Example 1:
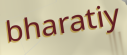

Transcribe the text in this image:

bharatiy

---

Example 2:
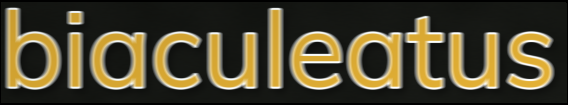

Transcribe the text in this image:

biaculeatus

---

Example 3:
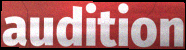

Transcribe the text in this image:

audition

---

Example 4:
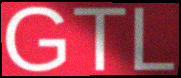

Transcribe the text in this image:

GTL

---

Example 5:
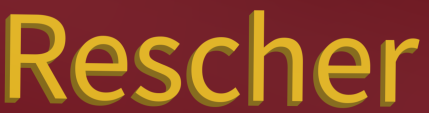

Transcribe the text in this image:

Rescher